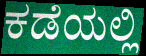
ಕಡೆಯಲ್ಲಿ